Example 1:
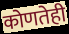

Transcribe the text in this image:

कोणतेही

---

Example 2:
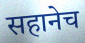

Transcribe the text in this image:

सहानेच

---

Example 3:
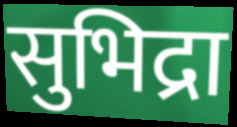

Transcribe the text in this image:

सुभिद्रा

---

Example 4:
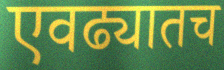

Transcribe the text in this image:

एवढ्यातच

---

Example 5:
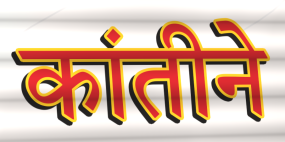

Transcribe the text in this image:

कांतीने